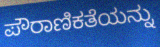
ಪೌರಾಣಿಕತೆಯನ್ನು